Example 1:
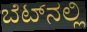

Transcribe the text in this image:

ಬೆಟ್‌ನಲ್ಲಿ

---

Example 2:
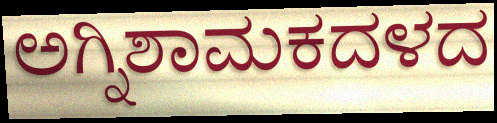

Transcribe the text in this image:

ಅಗ್ನಿಶಾಮಕದಳದ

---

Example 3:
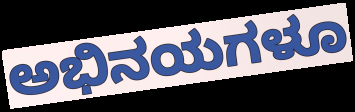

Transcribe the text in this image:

ಅಭಿನಯಗಳೂ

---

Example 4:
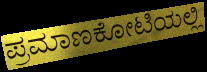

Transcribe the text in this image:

ಪ್ರಮಾಣಕೋಟಿಯಲ್ಲಿ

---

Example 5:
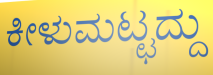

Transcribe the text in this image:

ಕೀಳುಮಟ್ಟದ್ದು